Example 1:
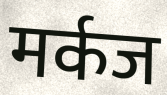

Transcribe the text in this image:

मर्कज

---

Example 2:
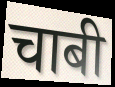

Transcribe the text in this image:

चाबी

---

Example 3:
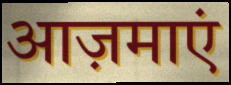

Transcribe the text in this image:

आज़माएं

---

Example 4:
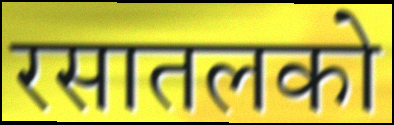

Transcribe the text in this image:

रसातलको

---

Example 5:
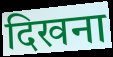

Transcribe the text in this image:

दिखना